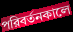
পরিবর্তনকালে